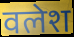
वलेश